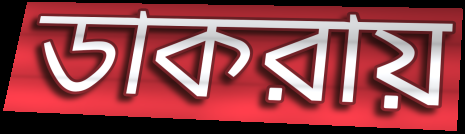
ডাকরায়